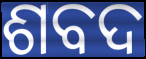
ଶବଦ